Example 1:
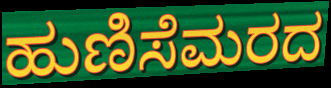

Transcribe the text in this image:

ಹುಣಿಸೆಮರದ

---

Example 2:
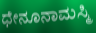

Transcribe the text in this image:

ಧೇನೂನಾಮಸ್ಮಿ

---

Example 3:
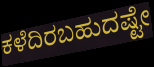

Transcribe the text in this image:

ಕಳೆದಿರಬಹುದಷ್ಟೇ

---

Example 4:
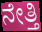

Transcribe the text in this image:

ನೇತ್ತಿ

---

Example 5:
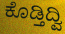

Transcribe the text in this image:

ಕೊಡ್ತಿದ್ವಿ